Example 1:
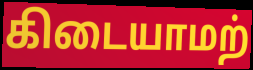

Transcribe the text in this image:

கிடையாமற்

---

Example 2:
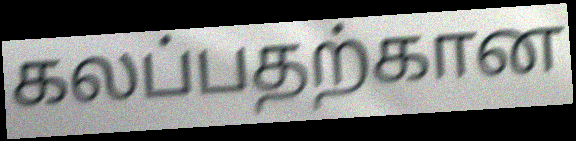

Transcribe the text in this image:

கலப்பதற்கான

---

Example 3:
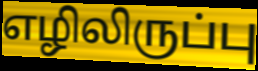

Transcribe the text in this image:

எழிலிருப்பு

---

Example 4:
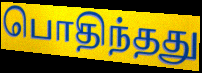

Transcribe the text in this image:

பொதிந்தது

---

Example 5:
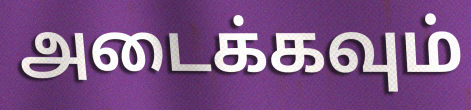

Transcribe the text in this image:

அடைக்கவும்